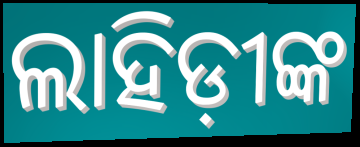
ଲାହିଡ଼ୀଙ୍କ